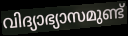
വിദ്യാഭ്യാസമുണ്ട്